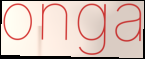
onga